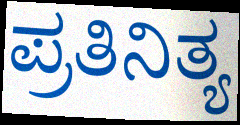
ಪ್ರತಿನಿತ್ಯ